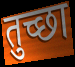
तुच्छा